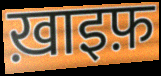
ख़ाइफ़